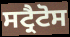
ਸਟ੍ਰੈਟੋਸ